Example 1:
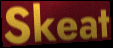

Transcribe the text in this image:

Skeat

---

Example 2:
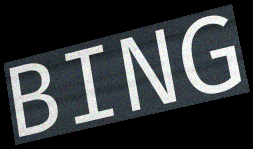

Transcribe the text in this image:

BING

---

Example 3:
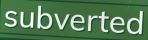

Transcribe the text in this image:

subverted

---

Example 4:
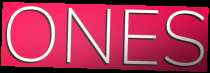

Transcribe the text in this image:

ONES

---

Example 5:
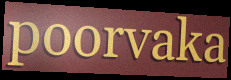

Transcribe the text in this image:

poorvaka